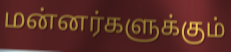
மன்னர்களுக்கும்